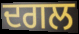
ਦਗਲ